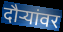
दौऱ्यांवर